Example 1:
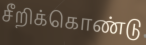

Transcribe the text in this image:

சீறிக்கொண்டு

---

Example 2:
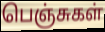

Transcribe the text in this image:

பெஞ்சுகள்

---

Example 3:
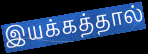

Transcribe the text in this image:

இயக்கத்தால்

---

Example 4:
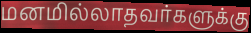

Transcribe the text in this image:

மனமில்லாதவர்களுக்கு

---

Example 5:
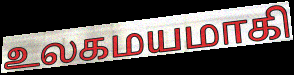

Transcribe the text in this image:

உலகமயமாகி